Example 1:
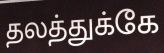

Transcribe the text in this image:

தலத்துக்கே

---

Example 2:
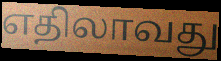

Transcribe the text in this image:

எதிலாவது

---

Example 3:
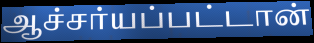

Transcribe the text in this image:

ஆச்சர்யப்பட்டான்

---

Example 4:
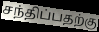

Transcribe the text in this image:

சந்திப்பதற்கு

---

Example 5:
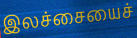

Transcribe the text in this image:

இலச்சையைச்